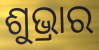
ଶୁଭ୍ରାର